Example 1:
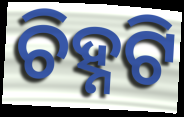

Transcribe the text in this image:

ଚିହ୍ନଟି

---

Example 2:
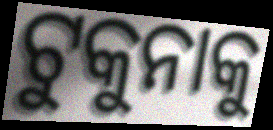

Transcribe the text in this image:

ଟୁକୁନାକୁ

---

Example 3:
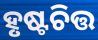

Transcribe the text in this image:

ହୃଷ୍ଟଚିତ୍ତ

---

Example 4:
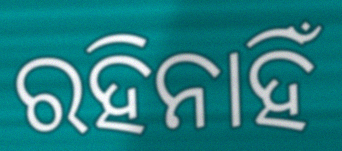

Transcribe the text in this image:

ରହିନାହିଁ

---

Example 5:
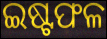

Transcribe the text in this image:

ଇଷ୍ଟଫଳ